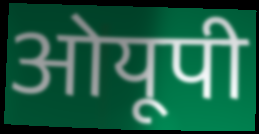
ओयूपी